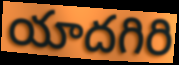
యాదగిరి